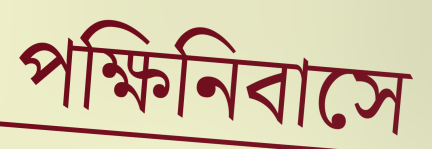
পক্ষিনিবাসে